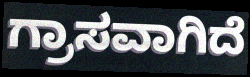
ಗ್ರಾಸವಾಗಿದೆ